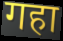
गहा